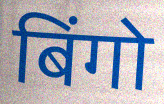
बिंगो